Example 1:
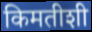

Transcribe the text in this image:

किमतीशी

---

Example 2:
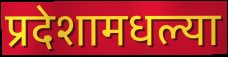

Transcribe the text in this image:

प्रदेशामधल्या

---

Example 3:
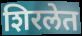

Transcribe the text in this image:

शिरलेत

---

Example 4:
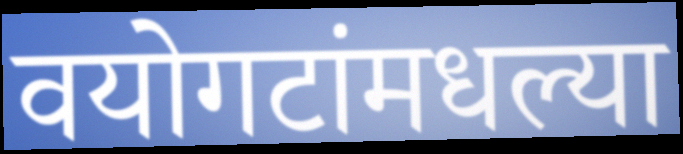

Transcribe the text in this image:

वयोगटांमधल्या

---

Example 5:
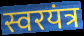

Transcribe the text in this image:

स्वरयंत्र